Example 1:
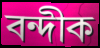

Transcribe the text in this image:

বন্দীক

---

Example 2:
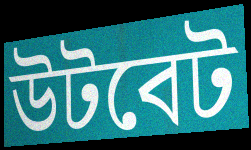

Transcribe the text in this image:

উটবেট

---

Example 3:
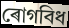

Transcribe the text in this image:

ৰোগবিধ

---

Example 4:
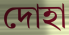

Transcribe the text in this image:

দোহা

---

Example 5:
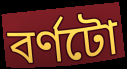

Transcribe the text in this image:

বৰ্ণটো